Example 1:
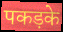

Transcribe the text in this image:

पकड़के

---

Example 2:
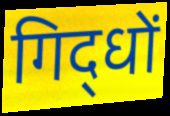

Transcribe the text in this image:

गिद्धों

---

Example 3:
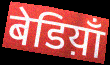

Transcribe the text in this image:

बेडिय़ाँ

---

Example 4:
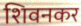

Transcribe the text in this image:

शिवनकर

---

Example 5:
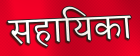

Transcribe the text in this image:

सहायिका